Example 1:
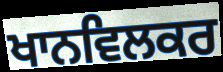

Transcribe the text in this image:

ਖਾਨਵਿਲਕਰ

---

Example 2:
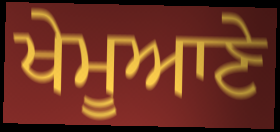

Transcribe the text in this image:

ਖੇਮੂਆਣੇ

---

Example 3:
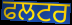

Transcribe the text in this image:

ਫਲਟਰ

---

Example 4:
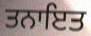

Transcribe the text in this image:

ਤਨਾਇਤ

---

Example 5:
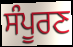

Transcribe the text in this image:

ਸੰਪੂਰਣ